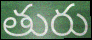
తురు